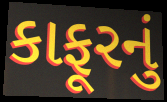
કાફૂરનું